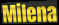
Milena